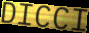
DICCI